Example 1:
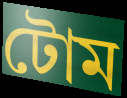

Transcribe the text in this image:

টোম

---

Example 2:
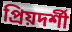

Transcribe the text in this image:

প্রিয়দর্শী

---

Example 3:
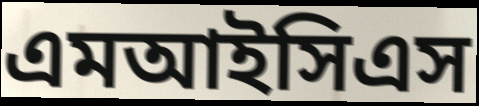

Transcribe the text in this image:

এমআইসিএস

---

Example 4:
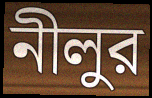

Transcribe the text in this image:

নীলুর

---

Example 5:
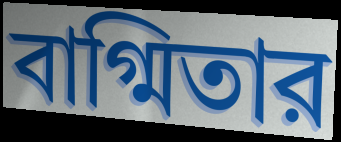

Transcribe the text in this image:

বাগ্মিতার